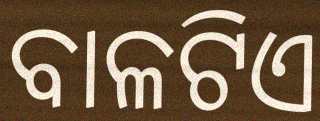
ବାଳଟିଏ